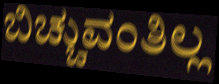
ಬಿಚ್ಚುವಂತಿಲ್ಲ